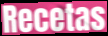
Recetas